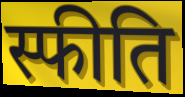
स्फीति